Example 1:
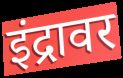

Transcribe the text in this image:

इंद्रावर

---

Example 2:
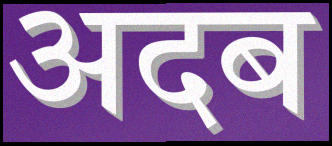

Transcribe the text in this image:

अदब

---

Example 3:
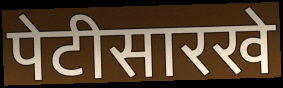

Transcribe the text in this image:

पेटीसारखे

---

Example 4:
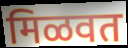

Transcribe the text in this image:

मिळवत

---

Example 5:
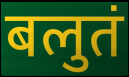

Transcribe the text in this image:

बलुतं